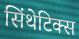
सिंथेटिक्स